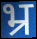
भ्र